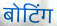
बोटिंग